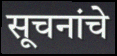
सूचनांचे